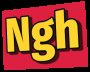
Ngh